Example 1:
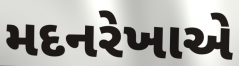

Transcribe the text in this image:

મદનરેખાએ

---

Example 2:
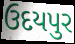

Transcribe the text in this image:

ઉદયપુર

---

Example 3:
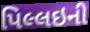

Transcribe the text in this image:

પિલ્લઇની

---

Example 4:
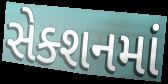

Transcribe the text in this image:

સેક્શનમાં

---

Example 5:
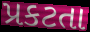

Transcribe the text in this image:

પ્રકટતા